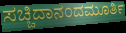
ಸಚ್ಚಿದಾನಂದಮೂರ್ತಿ